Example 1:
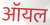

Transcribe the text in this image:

ऑयल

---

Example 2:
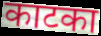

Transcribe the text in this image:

काटका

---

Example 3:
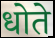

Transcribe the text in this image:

धोते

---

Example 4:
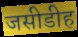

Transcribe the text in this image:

जसीडीह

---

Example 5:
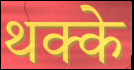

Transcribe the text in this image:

थक्के